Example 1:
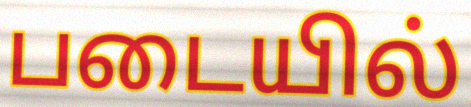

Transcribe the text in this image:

படையில்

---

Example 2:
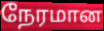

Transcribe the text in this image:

நேரமான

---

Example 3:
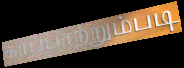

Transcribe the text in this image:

காப்பாற்றும்படி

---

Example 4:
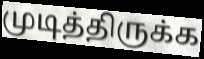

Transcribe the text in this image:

முடித்திருக்க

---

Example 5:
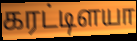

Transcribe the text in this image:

கரட்டிளயா